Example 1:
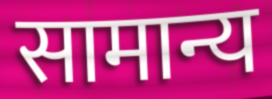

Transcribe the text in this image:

सामान्य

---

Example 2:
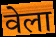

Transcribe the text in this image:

वेला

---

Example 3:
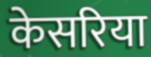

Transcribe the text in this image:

केसरिया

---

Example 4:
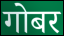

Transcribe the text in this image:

गोबर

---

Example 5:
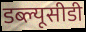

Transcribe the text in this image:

डब्ल्यूसीडी